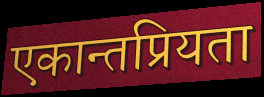
एकान्तप्रियता